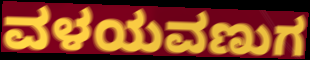
ವಳಯವಣುಗ